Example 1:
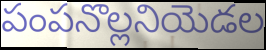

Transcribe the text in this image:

పంపనొల్లనియెడల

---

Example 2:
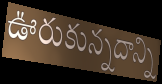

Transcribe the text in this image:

ఊరుకున్నదాన్ని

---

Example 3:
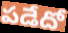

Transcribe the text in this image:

పడేదో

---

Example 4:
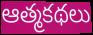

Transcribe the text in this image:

ఆత్మకథలు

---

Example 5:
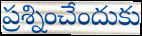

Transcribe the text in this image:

ప్రశ్నించేందుకు